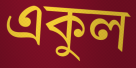
একুল